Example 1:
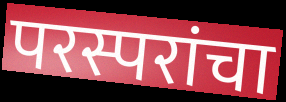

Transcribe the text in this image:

परस्परांचा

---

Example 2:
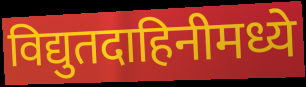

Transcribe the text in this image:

विद्युतदाहिनीमध्ये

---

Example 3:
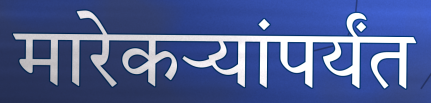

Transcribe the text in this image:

मारेकऱ्यांपर्यंत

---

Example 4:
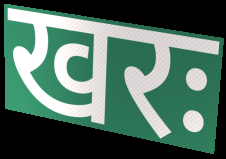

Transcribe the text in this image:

खरः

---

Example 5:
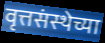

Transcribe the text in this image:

वृत्तसंस्थेच्या